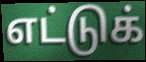
எட்டுக்